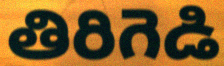
తిరిగెడి